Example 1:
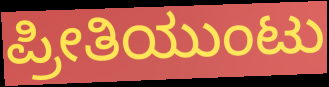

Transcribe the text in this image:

ಪ್ರೀತಿಯುಂಟು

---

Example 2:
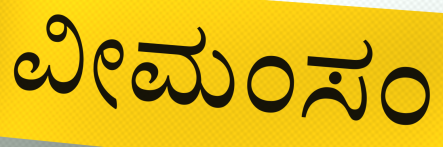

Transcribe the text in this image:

ವೀಮಂಸಂ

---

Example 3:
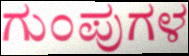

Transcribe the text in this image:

ಗುಂಪುಗಳ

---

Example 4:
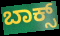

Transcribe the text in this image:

ಬಾಕ್ಸ್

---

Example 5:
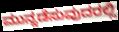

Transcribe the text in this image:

ಮುನ್ನಡೆಸುವುದರಲ್ಲಿ